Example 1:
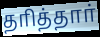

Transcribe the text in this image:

தரித்தார்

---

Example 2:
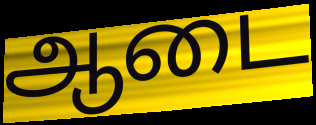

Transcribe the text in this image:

ஆடை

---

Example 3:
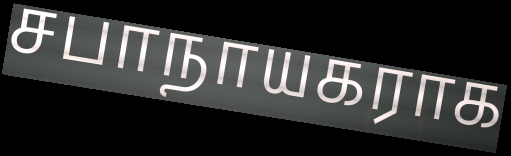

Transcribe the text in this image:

சபாநாயகராக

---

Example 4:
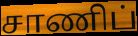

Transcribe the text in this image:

சாணிப்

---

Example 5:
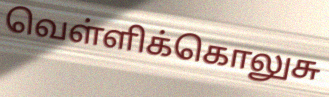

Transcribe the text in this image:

வெள்ளிக்கொலுசு